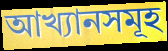
আখ্যানসমূহ